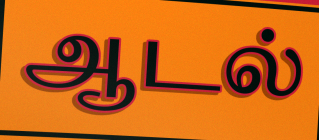
ஆடல்